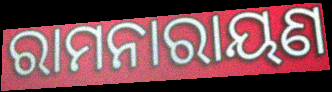
ରାମନାରାୟଣ